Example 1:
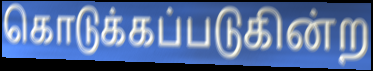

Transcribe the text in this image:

கொடுக்கப்படுகின்ற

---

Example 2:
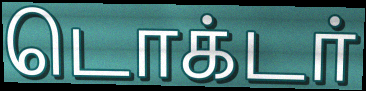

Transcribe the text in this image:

டொக்டர்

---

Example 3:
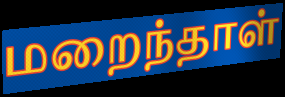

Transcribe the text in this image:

மறைந்தாள்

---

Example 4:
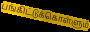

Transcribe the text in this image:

பங்கிட்டுக்கொள்ளும்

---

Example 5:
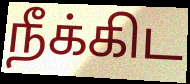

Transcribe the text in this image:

நீக்கிட